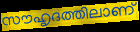
സൗഹൃദത്തിലാണ്